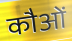
कौओं